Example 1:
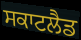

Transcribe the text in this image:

ਸਕਾਟਲੈਡ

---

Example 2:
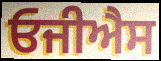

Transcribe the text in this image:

ਓਜੀਐਸ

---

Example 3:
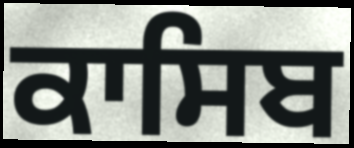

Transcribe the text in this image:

ਕਾਸਿਬ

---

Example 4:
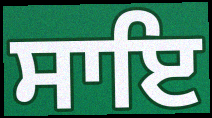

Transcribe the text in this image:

ਸਾਇ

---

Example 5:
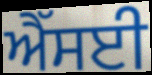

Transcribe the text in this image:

ਐੱਸਈ